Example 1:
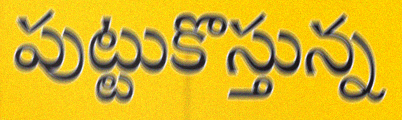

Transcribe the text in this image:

పుట్టుకొస్తున్న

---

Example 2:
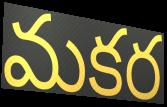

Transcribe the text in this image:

మకర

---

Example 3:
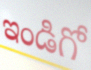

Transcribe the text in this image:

ఇండిగో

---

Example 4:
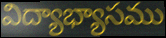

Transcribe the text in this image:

విద్యాభ్యాసము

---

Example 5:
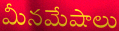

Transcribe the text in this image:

మీనమేషాలు